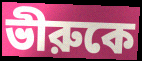
ভীরুকে